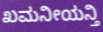
ಖಮನೀಯನ್ತಿ